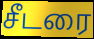
சீடரை